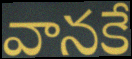
వానకే